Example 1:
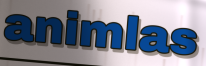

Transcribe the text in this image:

animlas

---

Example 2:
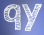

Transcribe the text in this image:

qy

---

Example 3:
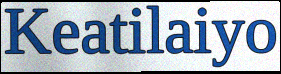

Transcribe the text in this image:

Keatilaiyo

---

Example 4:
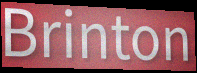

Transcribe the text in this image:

Brinton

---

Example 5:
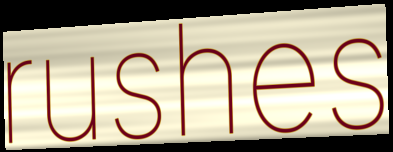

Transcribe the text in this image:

rushes